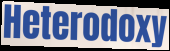
Heterodoxy